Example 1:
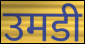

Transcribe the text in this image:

उमडी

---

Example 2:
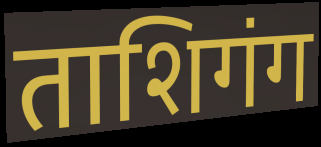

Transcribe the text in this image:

ताशिगंग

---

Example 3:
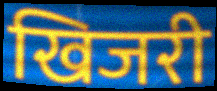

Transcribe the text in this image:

खिजरी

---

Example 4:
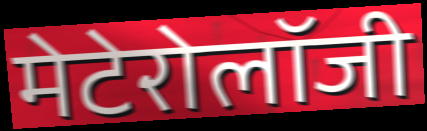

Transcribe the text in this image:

मेटेरोलॉजी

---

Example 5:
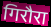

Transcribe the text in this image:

गिरौरा